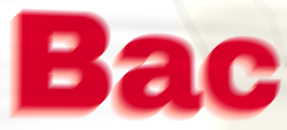
Bac